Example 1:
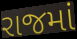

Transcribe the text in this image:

રાજમાં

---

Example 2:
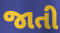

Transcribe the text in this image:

જાતી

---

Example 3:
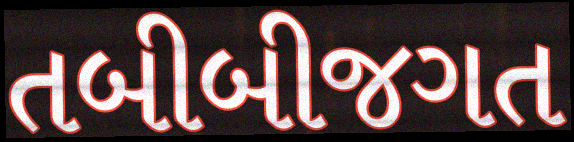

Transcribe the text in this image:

તબીબીજગત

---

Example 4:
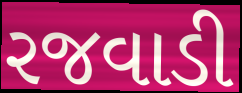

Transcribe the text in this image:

રજવાડી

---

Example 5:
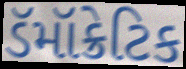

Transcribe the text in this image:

ડૅમૉક્રેટિક